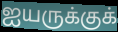
ஐயருக்குக்